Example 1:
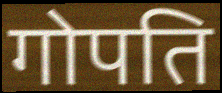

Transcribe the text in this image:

गोपति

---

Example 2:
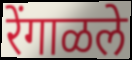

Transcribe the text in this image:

रेंगाळले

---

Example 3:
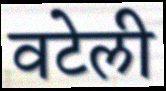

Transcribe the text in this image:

वटेली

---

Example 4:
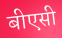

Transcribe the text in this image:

बीएसी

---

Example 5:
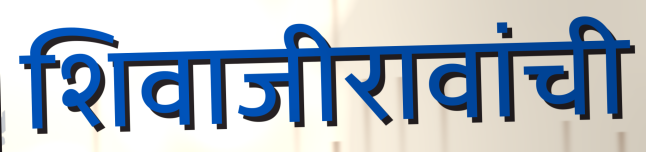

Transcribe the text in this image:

शिवाजीरावांची